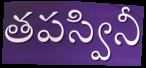
తపస్వినీ